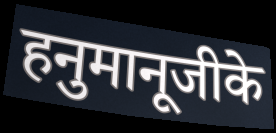
हनुमानूजीके